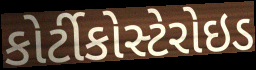
કોર્ટીકોસ્ટેરોઇડ